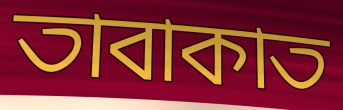
তাবাকাত